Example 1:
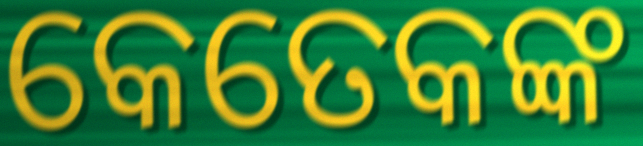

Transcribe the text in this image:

କେତେକଙ୍କ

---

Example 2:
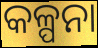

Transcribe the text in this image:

କଳ୍ପନା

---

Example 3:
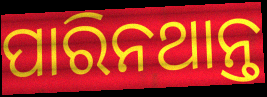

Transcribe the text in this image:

ପାରିନଥାନ୍ତ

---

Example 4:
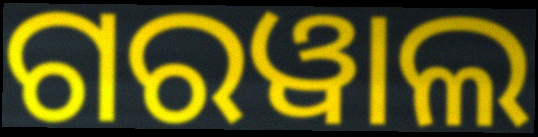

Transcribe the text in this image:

ଗରୱାଲ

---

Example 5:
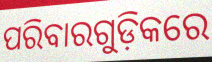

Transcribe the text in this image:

ପରିବାରଗୁଡ଼ିକରେ